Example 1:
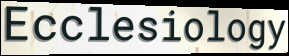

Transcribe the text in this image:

Ecclesiology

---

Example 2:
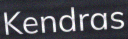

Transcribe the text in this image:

Kendras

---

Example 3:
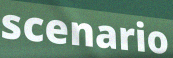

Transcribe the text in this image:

scenario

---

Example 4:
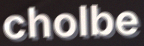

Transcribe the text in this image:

cholbe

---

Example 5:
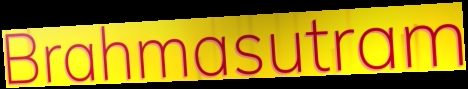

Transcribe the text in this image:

Brahmasutram